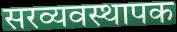
सरव्यवस्थापक